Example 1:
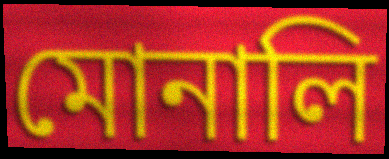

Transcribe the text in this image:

মোনালি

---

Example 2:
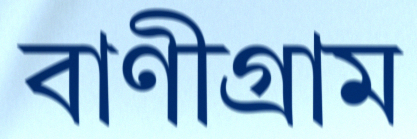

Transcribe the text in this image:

বাণীগ্রাম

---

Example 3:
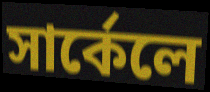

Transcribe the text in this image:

সার্কেলে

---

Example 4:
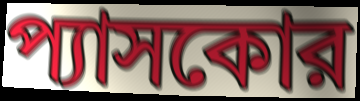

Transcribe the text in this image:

প্যাসকোর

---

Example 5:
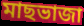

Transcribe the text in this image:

মাছভাজা